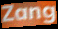
Zang